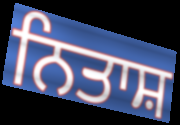
ਨਿਤਾਸ਼